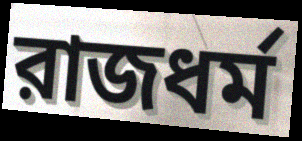
রাজধর্ম